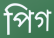
পিগ